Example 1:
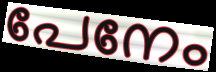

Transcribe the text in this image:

പേനേം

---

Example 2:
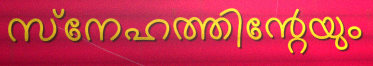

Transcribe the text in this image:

സ്‌നേഹത്തിന്റേയും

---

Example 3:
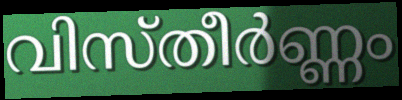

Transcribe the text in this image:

വിസ്തീർണ്ണം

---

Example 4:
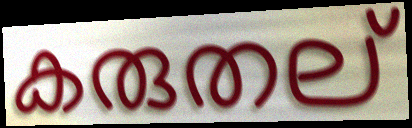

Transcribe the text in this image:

കരുതല്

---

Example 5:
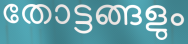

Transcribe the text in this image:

തോട്ടങ്ങളും